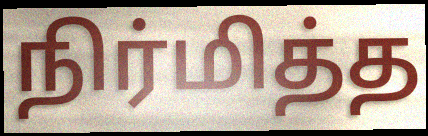
நிர்மித்த